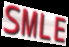
SMLE